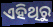
ଏହିଥିରୁ